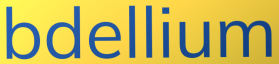
bdellium